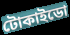
টোকাইডো